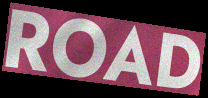
ROAD